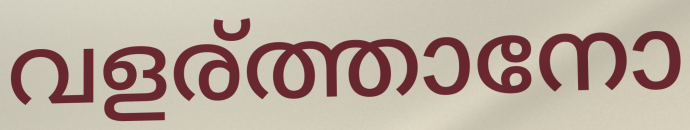
വളര്ത്താനോ